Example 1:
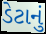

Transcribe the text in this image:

ડેટાનું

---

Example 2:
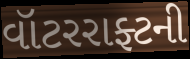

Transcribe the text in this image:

વૉટરરાફ્ટની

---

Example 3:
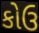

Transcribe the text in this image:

કોઉ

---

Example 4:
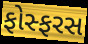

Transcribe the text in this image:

ફોસ્ફરસ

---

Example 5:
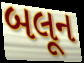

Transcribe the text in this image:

બલૂન